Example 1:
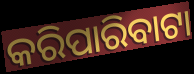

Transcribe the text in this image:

କରିପାରିବାଟା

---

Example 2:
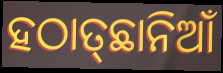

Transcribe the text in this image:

ହଠାତ୍‌ଛାନିଆଁ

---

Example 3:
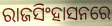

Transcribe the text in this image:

ରାଜସିଂହାସନରେ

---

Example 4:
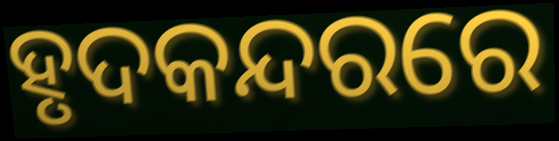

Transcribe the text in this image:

ହୃଦକନ୍ଦରରେ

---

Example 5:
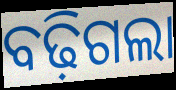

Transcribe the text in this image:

ବଢ଼ିଗଲା